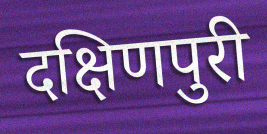
दक्षिणपुरी